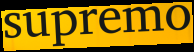
supremo